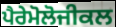
ਪੈਰੇਮੋਲੋਜੀਕਲ